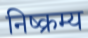
निष्क्रम्य